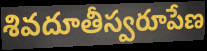
శివదూతీస్వరూపేణ